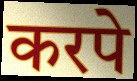
करपे